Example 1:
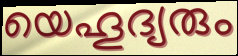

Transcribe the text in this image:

യെഹൂദ്യരും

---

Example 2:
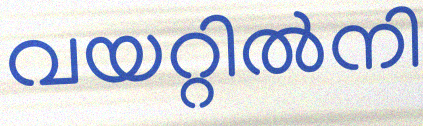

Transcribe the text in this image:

വയറ്റിൽനി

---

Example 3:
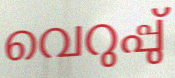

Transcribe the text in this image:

വെറുപ്പു്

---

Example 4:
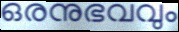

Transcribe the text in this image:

ഒരനുഭവവും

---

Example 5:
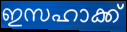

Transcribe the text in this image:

ഇസഹാക്ക്